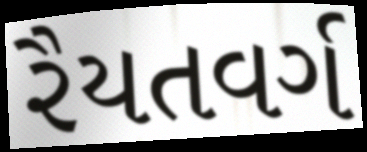
રૈયતવર્ગ